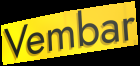
Vembar